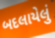
બદલાયેલું